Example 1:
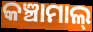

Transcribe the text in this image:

କଞ୍ଚାମାଲ୍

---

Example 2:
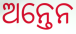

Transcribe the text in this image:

ଅନ୍ତେନ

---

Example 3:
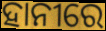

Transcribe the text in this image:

ହାନୀରେ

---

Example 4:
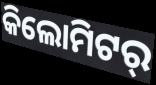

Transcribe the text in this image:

କିଲୋମିଟର୍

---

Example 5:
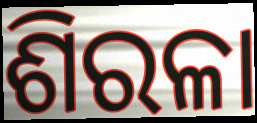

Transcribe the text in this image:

ଶିରଳା